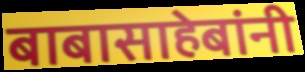
बाबासाहेबांनी